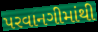
પરવાનગીમાંથી